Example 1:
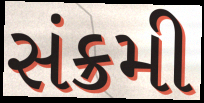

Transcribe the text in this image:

સંક્રમી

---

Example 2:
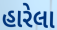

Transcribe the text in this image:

હારેલા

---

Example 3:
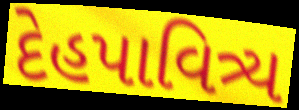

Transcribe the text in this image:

દેહપાવિત્ર્ય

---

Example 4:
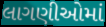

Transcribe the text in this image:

લાગણીઓમાં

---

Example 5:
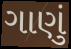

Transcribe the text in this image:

ગાણું